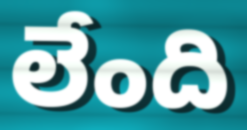
లేంది